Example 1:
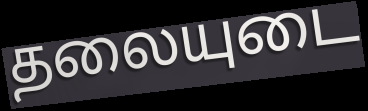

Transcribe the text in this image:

தலையுடை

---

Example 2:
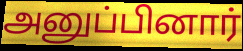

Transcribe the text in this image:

அனுப்பினார்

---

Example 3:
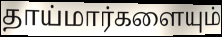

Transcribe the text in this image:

தாய்மார்களையும்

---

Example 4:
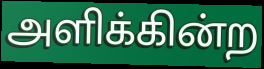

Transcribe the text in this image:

அளிக்கின்ற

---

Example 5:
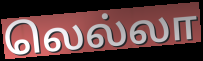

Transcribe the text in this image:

லெல்லா